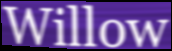
Willow